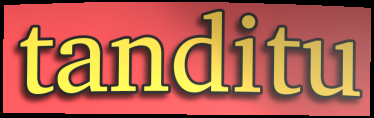
tanditu